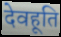
देवहूति